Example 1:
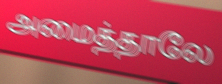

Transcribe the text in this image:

அமைத்தாலே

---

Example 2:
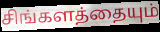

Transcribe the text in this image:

சிங்களத்தையும்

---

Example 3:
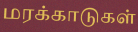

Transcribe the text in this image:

மரக்காடுகள்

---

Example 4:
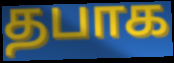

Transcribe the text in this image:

தபாக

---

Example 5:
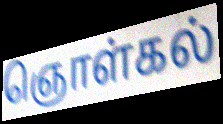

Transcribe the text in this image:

ஞொள்கல்